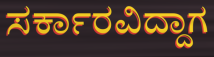
ಸರ್ಕಾರವಿದ್ದಾಗ